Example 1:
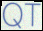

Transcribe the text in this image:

QT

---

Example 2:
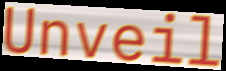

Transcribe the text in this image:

Unveil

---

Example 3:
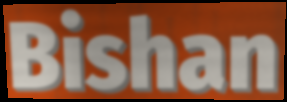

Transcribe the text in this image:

Bishan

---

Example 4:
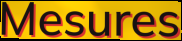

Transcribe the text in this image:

Mesures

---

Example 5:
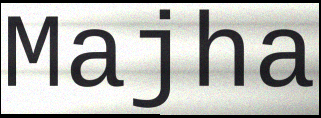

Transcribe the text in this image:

Majha